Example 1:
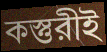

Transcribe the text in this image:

কস্তুরীই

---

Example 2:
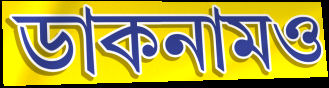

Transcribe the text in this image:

ডাকনামও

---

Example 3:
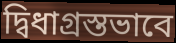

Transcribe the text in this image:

দ্বিধাগ্রস্তভাবে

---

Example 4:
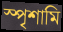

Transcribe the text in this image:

স্পৃশামি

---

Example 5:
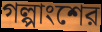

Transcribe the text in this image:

গল্পাংশের